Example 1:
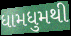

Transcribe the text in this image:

ધામધુમથી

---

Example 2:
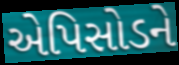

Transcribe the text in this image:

એપિસોડને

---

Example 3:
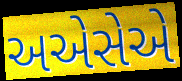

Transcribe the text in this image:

અએસેએ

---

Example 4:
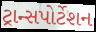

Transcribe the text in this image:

ટ્રાન્સપોર્ટેશન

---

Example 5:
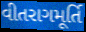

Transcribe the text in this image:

વીતરાગમૂર્તિ